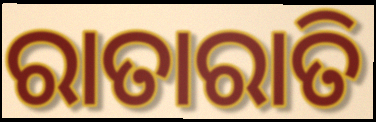
ରାତାରାତି